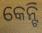
କେନ୍ଟି